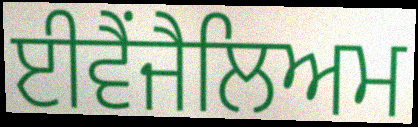
ਈਵੈਂਜੈਲਿਅਮ